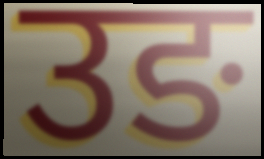
उङ